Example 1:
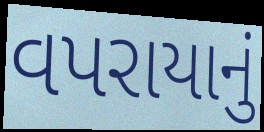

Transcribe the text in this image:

વપરાયાનું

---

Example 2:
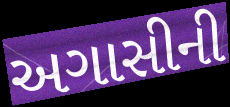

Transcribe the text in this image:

અગાસીની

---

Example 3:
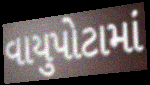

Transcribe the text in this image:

વાયુપોટામાં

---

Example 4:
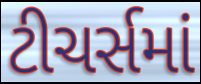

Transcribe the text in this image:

ટીચર્સમાં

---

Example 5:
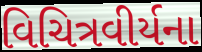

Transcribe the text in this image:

વિચિત્રવીર્યના